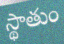
స్థాతుం